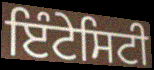
ਇੰਟੇਸਿਟੀ